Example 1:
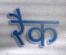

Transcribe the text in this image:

रैक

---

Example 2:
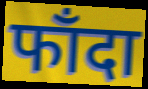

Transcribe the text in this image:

फाँदा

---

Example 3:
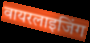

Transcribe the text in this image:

वायरलाइजिंग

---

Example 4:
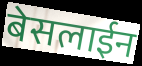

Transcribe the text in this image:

बेसलाईन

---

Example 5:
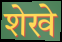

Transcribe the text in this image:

शेखे